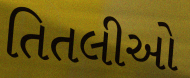
તિતલીઓ